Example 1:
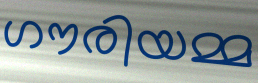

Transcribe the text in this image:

ഗൗരിയമ്മ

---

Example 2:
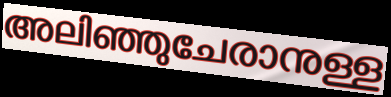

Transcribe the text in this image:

അലിഞ്ഞുചേരാനുള്ള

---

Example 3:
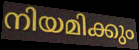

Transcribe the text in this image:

നിയമിക്കും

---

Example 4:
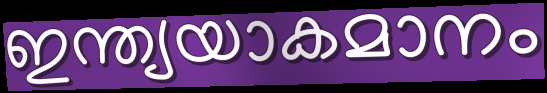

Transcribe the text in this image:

ഇന്ത്യയാകമാനം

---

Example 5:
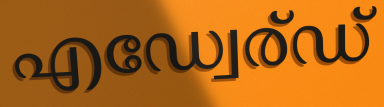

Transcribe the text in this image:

എഡ്വേര്ഡ്